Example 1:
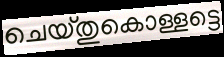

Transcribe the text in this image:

ചെയ്തുകൊള്ളട്ടെ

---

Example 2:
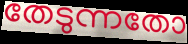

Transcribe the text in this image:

തേടുന്നതോ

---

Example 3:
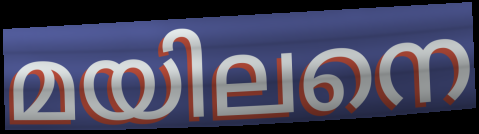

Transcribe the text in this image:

മയിലനെ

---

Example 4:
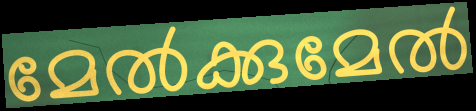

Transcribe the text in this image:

മേൽക്കുമേൽ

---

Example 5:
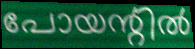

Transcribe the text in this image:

പോയന്റിൽ